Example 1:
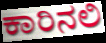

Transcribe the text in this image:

ಕಾರಿನಲಿ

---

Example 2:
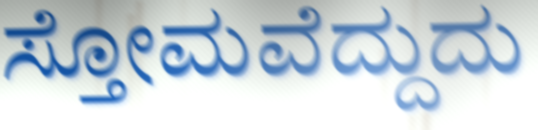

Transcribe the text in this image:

ಸ್ತೋಮವೆದ್ದುದು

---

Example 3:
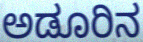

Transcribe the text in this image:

ಅಡೂರಿನ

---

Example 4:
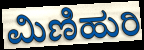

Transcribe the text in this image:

ಮಿಣಿಹುರಿ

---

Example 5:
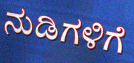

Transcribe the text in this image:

ನುಡಿಗಳಿಗೆ